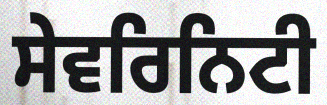
ਸੇਵਰਿਨਿਟੀ